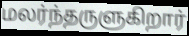
மலர்ந்தருளுகிறார்